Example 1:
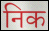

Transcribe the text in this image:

निक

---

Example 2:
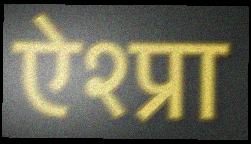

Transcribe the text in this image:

ऐश्प्रा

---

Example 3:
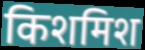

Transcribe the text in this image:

किशमिश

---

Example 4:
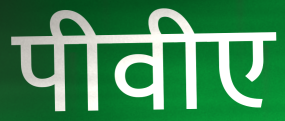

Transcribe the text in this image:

पीवीए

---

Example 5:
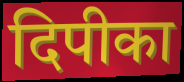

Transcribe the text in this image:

दिपीका